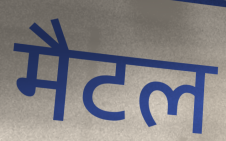
मैटल